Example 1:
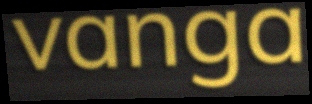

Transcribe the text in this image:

vanga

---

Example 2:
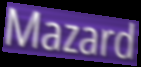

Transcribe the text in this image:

Mazard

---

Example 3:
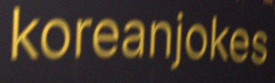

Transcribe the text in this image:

koreanjokes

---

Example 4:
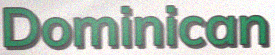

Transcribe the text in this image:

Dominican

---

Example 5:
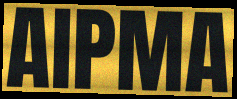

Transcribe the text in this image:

AIPMA